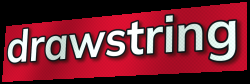
drawstring